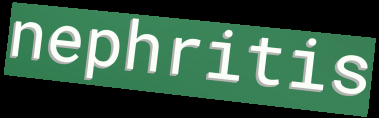
nephritis